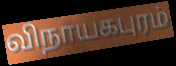
விநாயகபுரம்